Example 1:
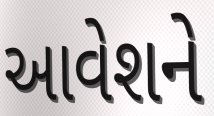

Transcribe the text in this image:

આવેશને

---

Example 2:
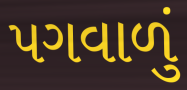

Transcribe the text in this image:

પગવાળું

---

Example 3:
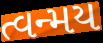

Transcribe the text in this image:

ત્વન્મય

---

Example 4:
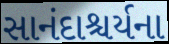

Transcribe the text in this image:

સાનંદાશ્ચર્યના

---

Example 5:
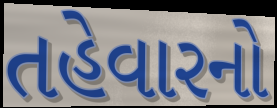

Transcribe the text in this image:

તહેવારનો